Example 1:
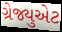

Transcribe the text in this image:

ગ્રેજ્યુએટ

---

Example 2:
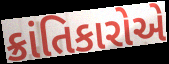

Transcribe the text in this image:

ક્રાંતિકારોએ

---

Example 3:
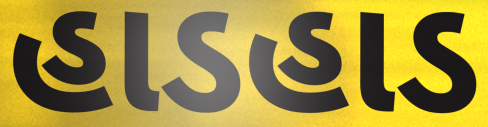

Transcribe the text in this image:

હાડહાડ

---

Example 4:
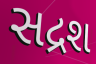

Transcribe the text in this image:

સદ્રશ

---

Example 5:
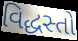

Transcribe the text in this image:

વિદ્ધસ્તો